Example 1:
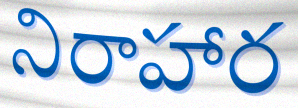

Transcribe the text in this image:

నిరాహార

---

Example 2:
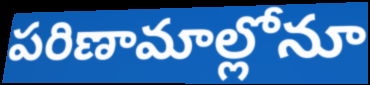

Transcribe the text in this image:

పరిణామాల్లోనూ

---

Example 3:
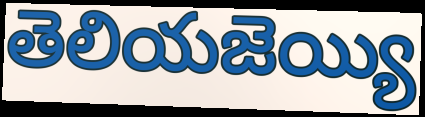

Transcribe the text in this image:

తెలియజెయ్యి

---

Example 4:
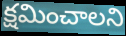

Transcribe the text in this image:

క్షమించాలని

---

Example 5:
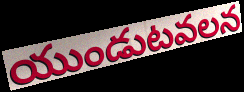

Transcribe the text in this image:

యుండుటవలన